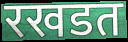
रखडत